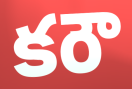
కరౌ